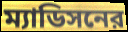
ম্যাডিসনের